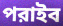
পরাইব